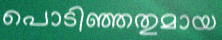
പൊടിഞ്ഞതുമായ